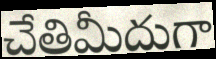
చేతిమీదుగా